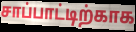
சாப்பாட்டிற்காக